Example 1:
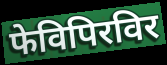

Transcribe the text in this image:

फेविपिरविर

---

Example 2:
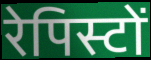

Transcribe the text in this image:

रेपिस्टों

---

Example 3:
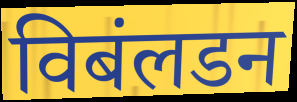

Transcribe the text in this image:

विबंलडन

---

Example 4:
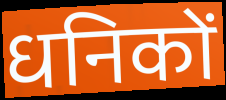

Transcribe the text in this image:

धनिकों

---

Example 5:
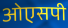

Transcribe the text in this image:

ओएसपी